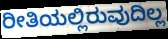
ರೀತಿಯಲ್ಲಿರುವುದಿಲ್ಲ